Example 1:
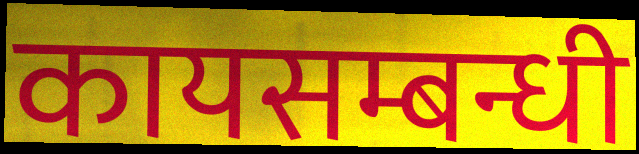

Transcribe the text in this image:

कायसम्बन्धी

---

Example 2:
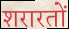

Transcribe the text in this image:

शरारतों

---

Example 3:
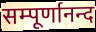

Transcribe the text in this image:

सम्पूर्णानन्द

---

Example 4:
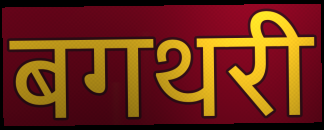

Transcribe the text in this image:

बगथरी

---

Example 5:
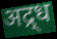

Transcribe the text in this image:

अद्र्ध